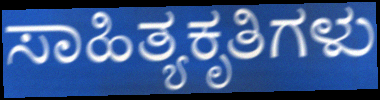
ಸಾಹಿತ್ಯಕೃತಿಗಳು